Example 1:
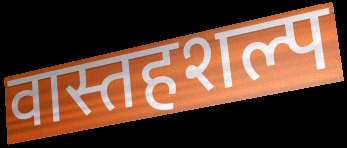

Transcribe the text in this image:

वास्तहशल्प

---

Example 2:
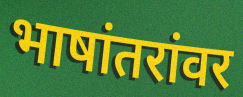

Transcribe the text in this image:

भाषांतरांवर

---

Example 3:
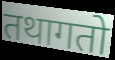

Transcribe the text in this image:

तथागतो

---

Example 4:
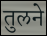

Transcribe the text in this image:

तुलने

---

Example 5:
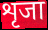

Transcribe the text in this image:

शृजा